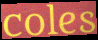
coles